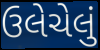
ઉલેચેલું